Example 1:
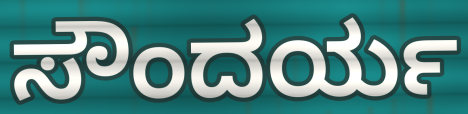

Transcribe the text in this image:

ಸೌಂದರ್ಯ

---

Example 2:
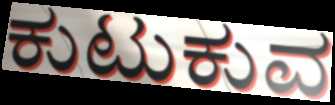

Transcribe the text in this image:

ಕುಟುಕುವ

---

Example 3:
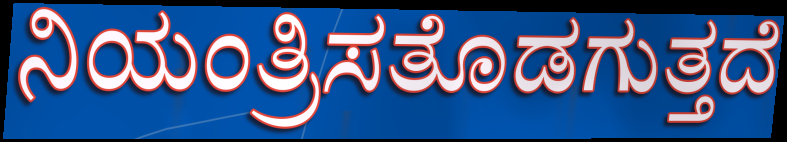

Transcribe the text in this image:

ನಿಯಂತ್ರಿಸತೊಡಗುತ್ತದೆ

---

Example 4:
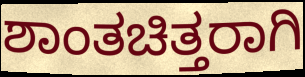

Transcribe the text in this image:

ಶಾಂತಚಿತ್ತರಾಗಿ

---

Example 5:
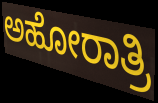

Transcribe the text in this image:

ಅಹೋರಾತ್ರಿ